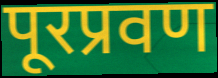
पूरप्रवण